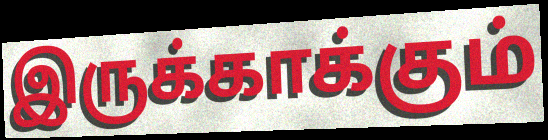
இருக்காக்கும்